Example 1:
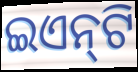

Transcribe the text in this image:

ଇଏନ୍‌ଟି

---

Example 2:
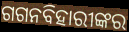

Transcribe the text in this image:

ଗଗନବିହାରୀଙ୍କର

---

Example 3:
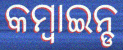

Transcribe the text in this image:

କମ୍ବାଇନ୍ଡ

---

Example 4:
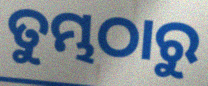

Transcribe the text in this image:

ତୁମ୍ଭଠାରୁ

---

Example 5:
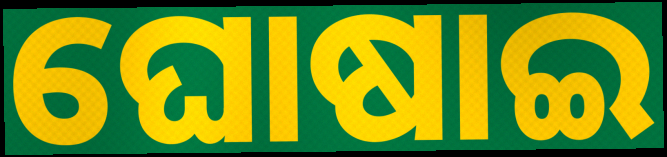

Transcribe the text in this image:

ଘୋଷାଇ